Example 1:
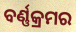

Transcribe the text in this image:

ବର୍ଣ୍ଣକ୍ରମର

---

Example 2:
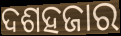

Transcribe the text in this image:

ଦଶହଜାର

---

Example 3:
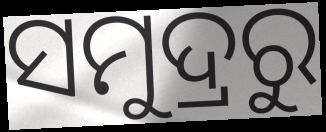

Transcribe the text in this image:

ସମୁଦ୍ରରୁ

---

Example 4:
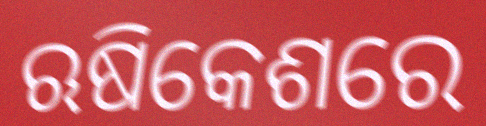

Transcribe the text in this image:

ଋଷିକେଶରେ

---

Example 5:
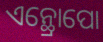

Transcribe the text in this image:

ଏନ୍ଥ୍ରୋପୋ